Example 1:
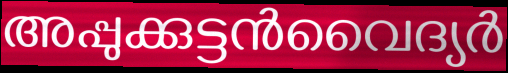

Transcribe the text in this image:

അപ്പുക്കുട്ടൻവൈദ്യർ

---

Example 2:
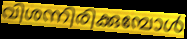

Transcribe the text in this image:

വിശന്നിരിക്കുമ്പോൾ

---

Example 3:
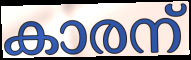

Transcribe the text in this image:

കാരന്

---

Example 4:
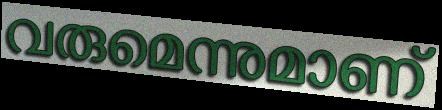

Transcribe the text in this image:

വരുമെന്നുമാണ്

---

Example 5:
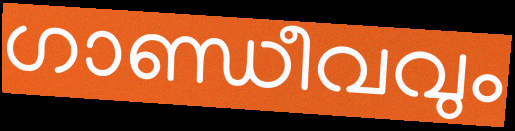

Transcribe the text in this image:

ഗാണ്ഡീവവും